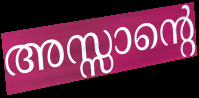
അസ്സാന്റെ